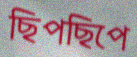
ছিপছিপে